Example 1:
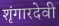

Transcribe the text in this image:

शृंगारदेवी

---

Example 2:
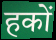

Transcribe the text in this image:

हकों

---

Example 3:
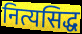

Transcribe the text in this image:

नित्यसिद्ध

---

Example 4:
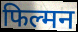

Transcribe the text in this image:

फिल्मन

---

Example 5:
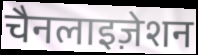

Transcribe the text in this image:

चैनलाइज़ेशन